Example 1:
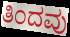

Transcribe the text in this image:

ತಿಂದವು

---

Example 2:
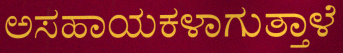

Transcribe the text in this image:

ಅಸಹಾಯಕಳಾಗುತ್ತಾಳೆ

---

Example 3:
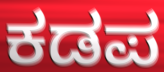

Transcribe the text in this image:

ಕಡಪ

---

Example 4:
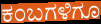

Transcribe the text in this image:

ಕಂಬಗಳಿಗೂ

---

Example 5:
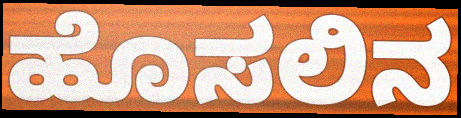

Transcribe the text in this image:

ಹೊಸಲಿನ